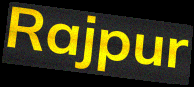
Rajpur